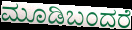
ಮೂಡಿಬಂದರೆ